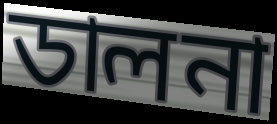
ডালনা